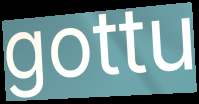
gottu